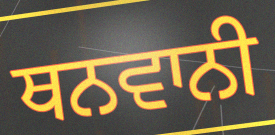
ਥਨਵਾਨੀ